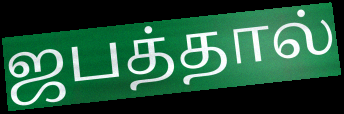
ஜபத்தால்